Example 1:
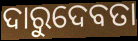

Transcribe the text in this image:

ଦାରୁଦେବତା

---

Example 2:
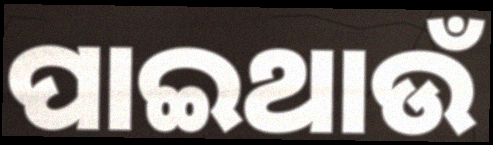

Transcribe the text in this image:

ପାଇଥାଉଁ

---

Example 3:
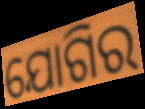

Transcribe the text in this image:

ଯୋଗିର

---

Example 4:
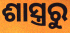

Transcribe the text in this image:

ଶାସ୍ତ୍ରରୁ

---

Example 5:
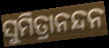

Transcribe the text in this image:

ସୁମିତ୍ରାନନ୍ଦନ